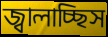
জ্বালাচ্ছিস